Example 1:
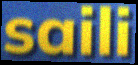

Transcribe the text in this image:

saili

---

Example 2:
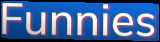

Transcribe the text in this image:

Funnies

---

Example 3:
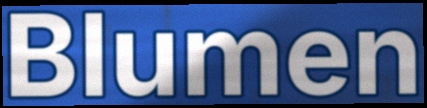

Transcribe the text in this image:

Blumen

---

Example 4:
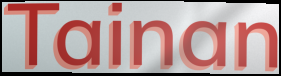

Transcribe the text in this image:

Tainan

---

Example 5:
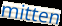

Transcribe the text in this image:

mitten